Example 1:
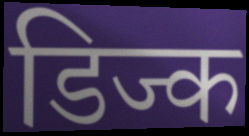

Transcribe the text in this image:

डिज्क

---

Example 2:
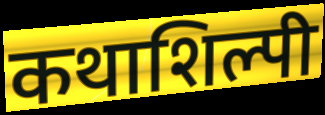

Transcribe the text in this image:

कथाशिल्पी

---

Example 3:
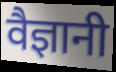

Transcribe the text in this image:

वैज्ञानी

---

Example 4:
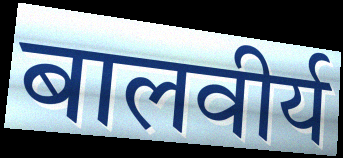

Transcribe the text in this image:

बालवीर्य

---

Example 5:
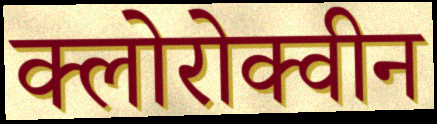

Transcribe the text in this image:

क्लोरोक्वीन